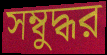
সম্বুদ্ধর